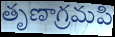
తృణాగ్రమపి